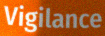
Vigilance